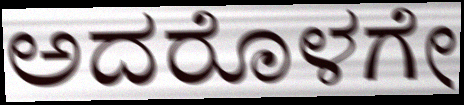
ಅದರೊಳಗೇ